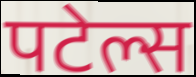
पटेल्स